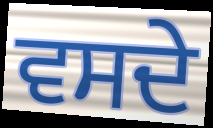
ਵਸਦੇ